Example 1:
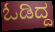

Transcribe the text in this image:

ಓಡಿದ್ದ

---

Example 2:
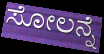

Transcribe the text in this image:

ಸೋಲನ್ನೆ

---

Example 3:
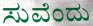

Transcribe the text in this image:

ಸುವೆಂದು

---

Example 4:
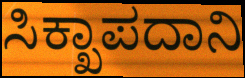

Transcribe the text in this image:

ಸಿಕ್ಖಾಪದಾನಿ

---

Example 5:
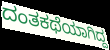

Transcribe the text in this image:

ದಂತಕಥೆಯಾಗಿದ್ದ